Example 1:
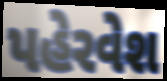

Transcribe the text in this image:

પહેરવેશ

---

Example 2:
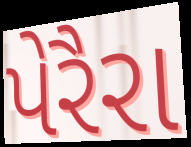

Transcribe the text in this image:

પેરૈરા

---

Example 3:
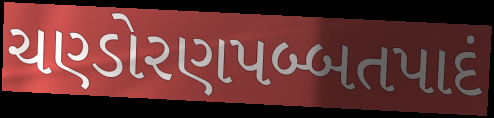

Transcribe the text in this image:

ચણ્ડોરણપબ્બતપાદં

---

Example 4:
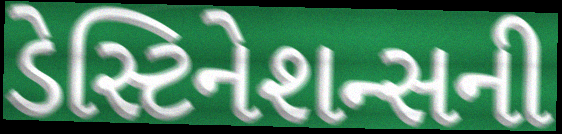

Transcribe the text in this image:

ડેસ્ટિનેશન્સની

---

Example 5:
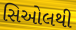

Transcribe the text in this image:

સિઓલથી